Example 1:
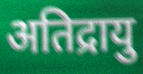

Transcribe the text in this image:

अतिद्रायु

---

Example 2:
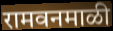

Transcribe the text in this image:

रामवनमाळी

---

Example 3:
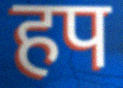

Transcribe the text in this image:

हप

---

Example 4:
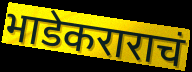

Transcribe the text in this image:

भाडेकराराचं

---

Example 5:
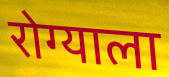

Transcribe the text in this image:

रोग्याला